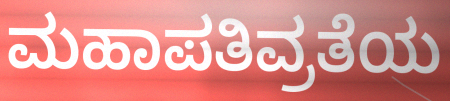
ಮಹಾಪತಿವ್ರತೆಯ